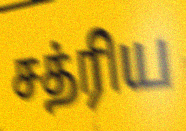
சத்ரிய